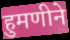
हुमणीने